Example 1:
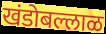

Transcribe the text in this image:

खंडोबल्लाळ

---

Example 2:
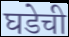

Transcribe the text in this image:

घडेची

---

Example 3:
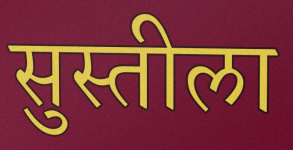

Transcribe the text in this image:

सुस्तीला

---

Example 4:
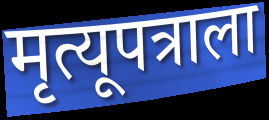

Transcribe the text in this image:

मृत्यूपत्राला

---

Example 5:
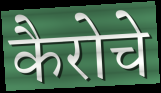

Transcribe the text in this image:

कैरोचे